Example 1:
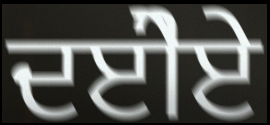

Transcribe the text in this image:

ਦਈੇਏ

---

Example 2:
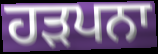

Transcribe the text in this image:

ਹੜਪਨਾ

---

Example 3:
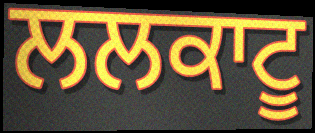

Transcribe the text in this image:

ਲਲਕਾਟੂ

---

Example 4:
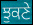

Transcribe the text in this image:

ਝੁਕਣੇ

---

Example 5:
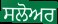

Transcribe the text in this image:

ਸਲੋਅਰ